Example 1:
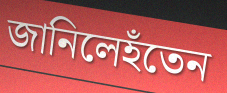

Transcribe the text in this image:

জানিলেহঁতেন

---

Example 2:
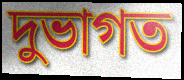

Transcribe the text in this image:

দুভাগত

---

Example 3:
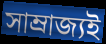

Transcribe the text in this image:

সাম্ৰাজ্যই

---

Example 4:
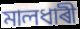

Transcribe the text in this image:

মালধাৰী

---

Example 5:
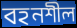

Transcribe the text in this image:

বহনশীল